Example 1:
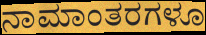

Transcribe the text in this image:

ನಾಮಾಂತರಗಳೂ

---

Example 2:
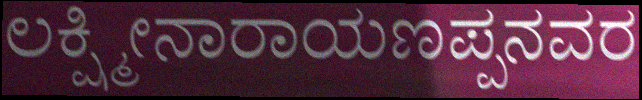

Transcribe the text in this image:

ಲಕ್ಷ್ಮೀನಾರಾಯಣಪ್ಪನವರ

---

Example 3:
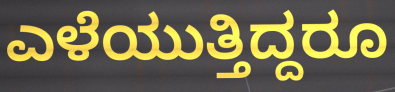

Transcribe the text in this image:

ಎಳೆಯುತ್ತಿದ್ದರೂ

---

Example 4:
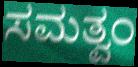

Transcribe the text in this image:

ಸಮತ್ವಂ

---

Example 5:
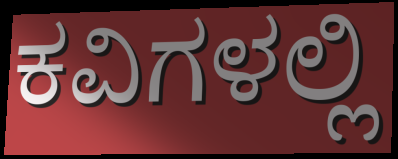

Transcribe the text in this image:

ಕವಿಗಳಲ್ಲಿ